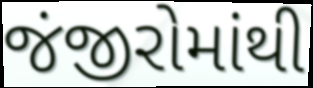
જંજીરોમાંથી